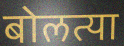
बोलत्या